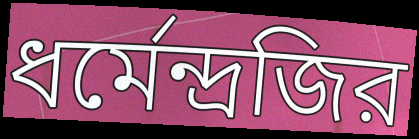
ধর্মেন্দ্রজির